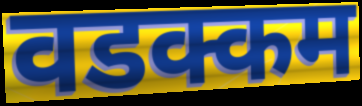
वडक्कम